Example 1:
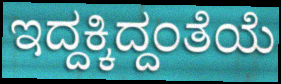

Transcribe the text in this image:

ಇದ್ದಕ್ಕಿದ್ದಂತೆಯೆ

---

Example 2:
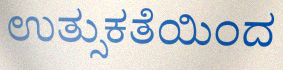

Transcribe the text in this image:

ಉತ್ಸುಕತೆಯಿಂದ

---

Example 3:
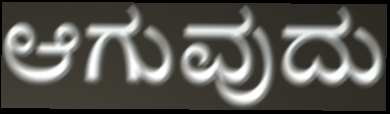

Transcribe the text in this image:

ಆಗುವುದು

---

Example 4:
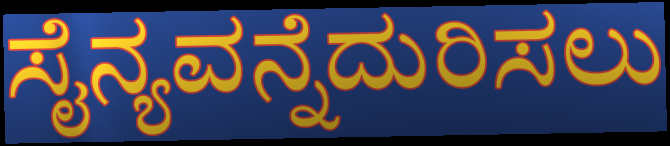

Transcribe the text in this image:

ಸೈನ್ಯವನ್ನೆದುರಿಸಲು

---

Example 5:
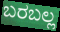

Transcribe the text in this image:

ಬರಬಲ್ಲ